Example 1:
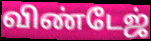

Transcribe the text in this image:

விண்டேஜ்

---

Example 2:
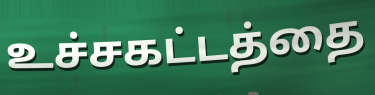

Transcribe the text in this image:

உச்சகட்டத்தை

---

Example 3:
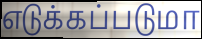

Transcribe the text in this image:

எடுக்கப்படுமா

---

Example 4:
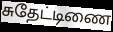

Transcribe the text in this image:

சுதேட்டிணை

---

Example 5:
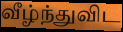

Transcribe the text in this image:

வீழ்ந்துவிட